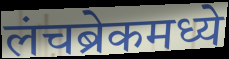
लंचब्रेकमध्ये